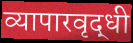
व्यापारवृद्धी